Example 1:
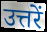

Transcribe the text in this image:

उत्तरें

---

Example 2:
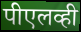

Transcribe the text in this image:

पीएलव्ही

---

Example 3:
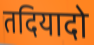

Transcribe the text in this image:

तदियादो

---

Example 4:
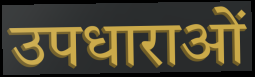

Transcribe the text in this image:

उपधाराओं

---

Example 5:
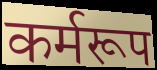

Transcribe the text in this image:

कर्मरूप